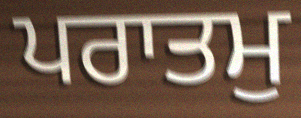
ਪਰਾਤਮੁ